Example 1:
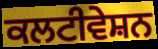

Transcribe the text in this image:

ਕਲਟੀਵੇਸ਼ਨ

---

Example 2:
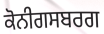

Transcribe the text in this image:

ਕੋਨੀਗਸਬਰਗ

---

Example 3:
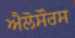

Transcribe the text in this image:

ਐਲੋਸੌਰਸ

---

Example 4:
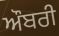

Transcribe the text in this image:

ਔਬਰੀ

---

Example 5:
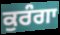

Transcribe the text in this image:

ਕੁਰੰਗਾ